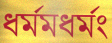
ধর্মমধর্মং